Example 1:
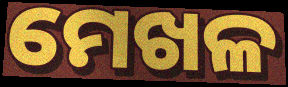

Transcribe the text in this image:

ମେଖଳ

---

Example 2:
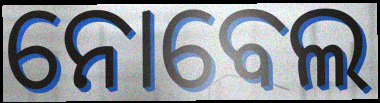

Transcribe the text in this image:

ନୋବେଲ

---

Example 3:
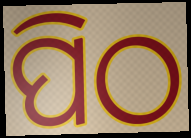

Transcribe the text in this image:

ପିଠ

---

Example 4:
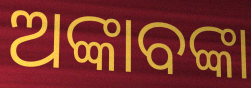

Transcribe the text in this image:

ଅଙ୍କାବଙ୍କା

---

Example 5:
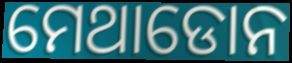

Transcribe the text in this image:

ମେଥାଡୋନ